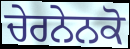
ਚੇਰਨੇਨਕੋ